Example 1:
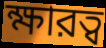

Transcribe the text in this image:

ক্ষারত্ব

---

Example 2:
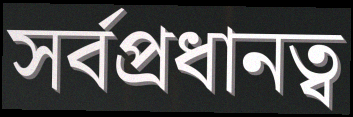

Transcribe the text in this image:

সর্বপ্রধানত্ব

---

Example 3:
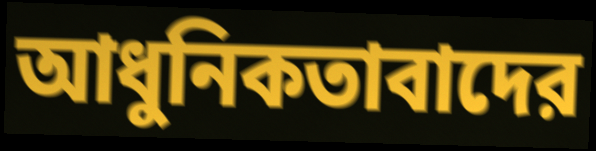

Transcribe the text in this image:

আধুনিকতাবাদের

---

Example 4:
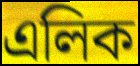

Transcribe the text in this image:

এলিক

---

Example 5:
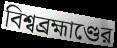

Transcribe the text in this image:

বিশ্বব্রহ্মাণ্ডের